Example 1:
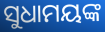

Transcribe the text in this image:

ସୁଧାମୟଙ୍କ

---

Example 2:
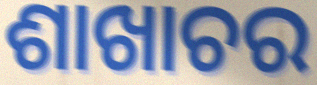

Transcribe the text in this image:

ଶାଖାଚର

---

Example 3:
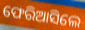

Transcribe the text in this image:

ଫେରିଆସିଲେ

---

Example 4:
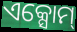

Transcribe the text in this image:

ଏକ୍ସୋମ୍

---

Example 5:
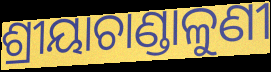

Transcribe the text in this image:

ଶ୍ରୀୟାଚାଣ୍ଡାଳୁଣୀ